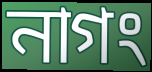
নাগং